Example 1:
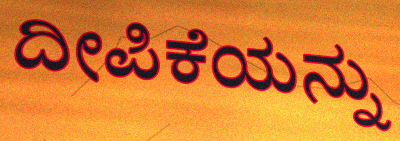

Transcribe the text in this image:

ದೀಪಿಕೆಯನ್ನು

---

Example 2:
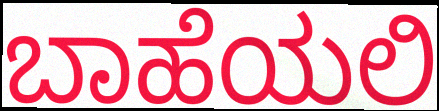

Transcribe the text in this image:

ಬಾಹೆಯಲಿ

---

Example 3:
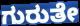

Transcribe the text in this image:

ಗುರುತೇ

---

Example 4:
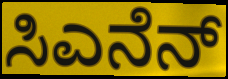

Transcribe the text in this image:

ಸಿಎನೆನ್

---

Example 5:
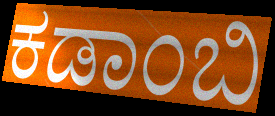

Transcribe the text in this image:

ಕಡಾಂಬಿ